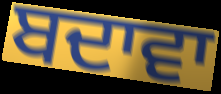
ਬਦਾਵਾ